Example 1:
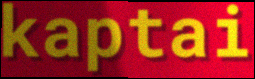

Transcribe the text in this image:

kaptai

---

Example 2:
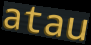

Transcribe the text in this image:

atau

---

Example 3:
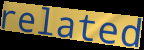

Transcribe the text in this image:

related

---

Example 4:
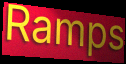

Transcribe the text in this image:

Ramps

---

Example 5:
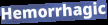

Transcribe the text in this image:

Hemorrhagic